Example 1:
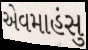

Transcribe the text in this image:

એવમાહંસુ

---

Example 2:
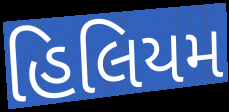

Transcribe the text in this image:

હિલિયમ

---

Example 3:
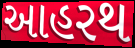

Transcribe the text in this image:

આહરથ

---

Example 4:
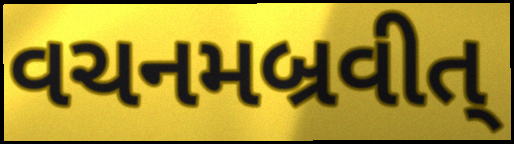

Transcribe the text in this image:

વચનમબ્રવીત્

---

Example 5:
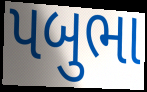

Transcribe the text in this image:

પબુભા